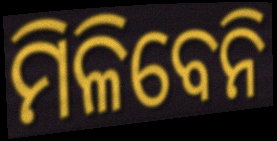
ମିଳିବେନି